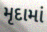
મૃદામાં